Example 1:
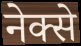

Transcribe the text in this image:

नेक्से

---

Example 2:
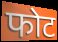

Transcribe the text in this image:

फोट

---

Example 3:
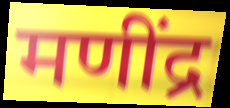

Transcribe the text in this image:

मणींद्र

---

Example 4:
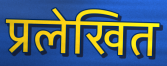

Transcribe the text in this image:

प्रलेखित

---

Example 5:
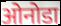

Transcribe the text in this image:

ओनोडा